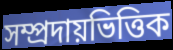
সম্প্রদায়ভিত্তিক